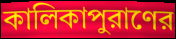
কালিকাপুরাণের